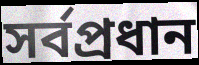
সৰ্বপ্ৰধান